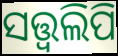
ସତ୍ତ୍ୱଲିପି